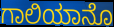
ಗಾಲಿಯಾನೊ